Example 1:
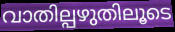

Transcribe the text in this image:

വാതില്പഴുതിലൂടെ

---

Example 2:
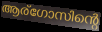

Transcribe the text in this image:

ആര്ഗോസിന്റെ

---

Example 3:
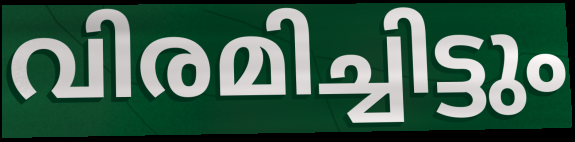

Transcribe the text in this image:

വിരമിച്ചിട്ടും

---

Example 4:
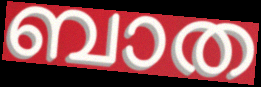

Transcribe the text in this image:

ബാത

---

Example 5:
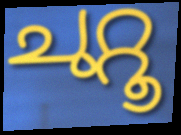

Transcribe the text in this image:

ചുറ്റൂ